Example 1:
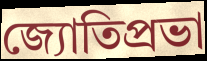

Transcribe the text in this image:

জ্যোতিপ্রভা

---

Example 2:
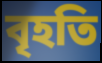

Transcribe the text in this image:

বৃহতি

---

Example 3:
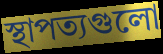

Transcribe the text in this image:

স্থাপত্যগুলো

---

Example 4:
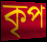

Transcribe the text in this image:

কৃপ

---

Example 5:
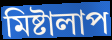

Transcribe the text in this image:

মিষ্টালাপ